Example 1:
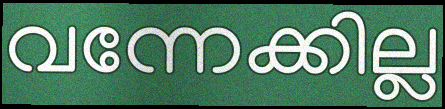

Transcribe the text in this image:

വന്നേക്കില്ല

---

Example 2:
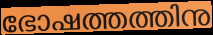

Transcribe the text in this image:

ഭോഷത്തത്തിനു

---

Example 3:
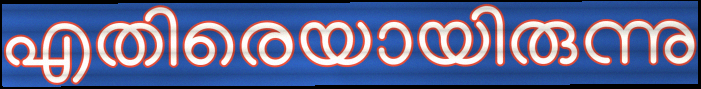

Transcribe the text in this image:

എതിരെയായിരുന്നു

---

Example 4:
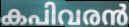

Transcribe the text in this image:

കപിവരൻ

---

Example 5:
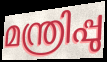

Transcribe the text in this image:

മന്ത്രിപ്പു